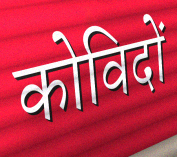
कोविदों